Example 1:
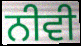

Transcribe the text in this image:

ਨੀਵੀ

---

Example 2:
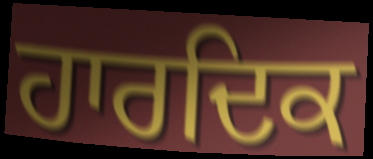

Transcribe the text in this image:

ਹਾਰਦਿਕ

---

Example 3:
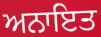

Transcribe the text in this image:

ਅਨਾਇਤ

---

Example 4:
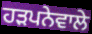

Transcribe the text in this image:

ਹੜਪਨੇਵਾਲੇ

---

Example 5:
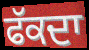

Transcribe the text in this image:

ਫੱਕਦਾ